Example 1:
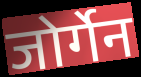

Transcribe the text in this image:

जोर्गेन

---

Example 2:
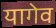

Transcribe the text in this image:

यागेव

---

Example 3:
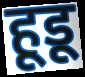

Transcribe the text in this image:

हूडू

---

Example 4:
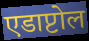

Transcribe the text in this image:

एडाप्टोल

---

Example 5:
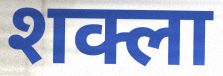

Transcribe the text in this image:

शक्ला